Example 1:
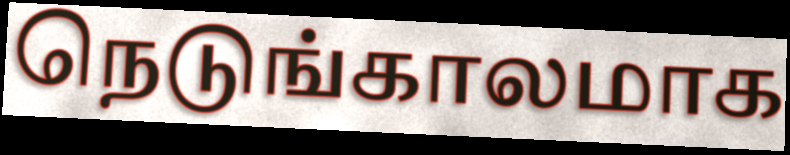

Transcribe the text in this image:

நெடுங்காலமாக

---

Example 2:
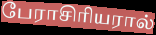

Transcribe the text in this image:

பேராசிரியரால்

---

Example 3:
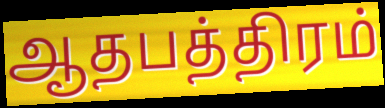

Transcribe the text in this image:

ஆதபத்திரம்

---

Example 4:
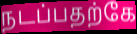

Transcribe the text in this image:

நடப்பதற்கே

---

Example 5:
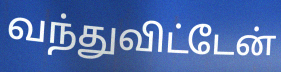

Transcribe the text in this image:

வந்துவிட்டேன்